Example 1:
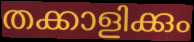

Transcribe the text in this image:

തക്കാളിക്കും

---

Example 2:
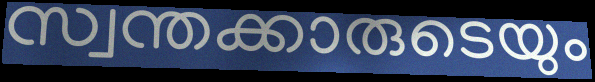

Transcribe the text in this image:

സ്വന്തക്കാരുടെയും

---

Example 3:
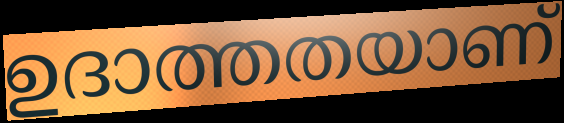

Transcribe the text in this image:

ഉദാത്തതയാണ്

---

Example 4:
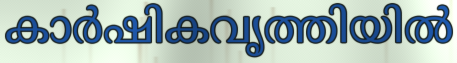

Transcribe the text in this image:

കാർഷികവൃത്തിയിൽ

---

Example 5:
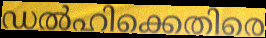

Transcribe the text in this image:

ഡൽഹിക്കെതിരെ